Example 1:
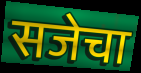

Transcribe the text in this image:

सजेचा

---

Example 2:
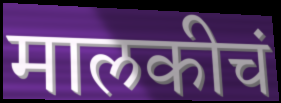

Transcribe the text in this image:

मालकीचं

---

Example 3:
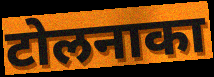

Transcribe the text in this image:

टोलनाका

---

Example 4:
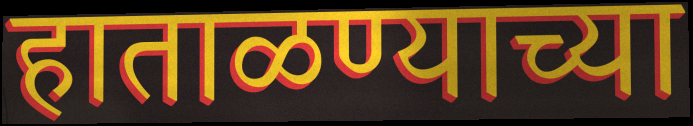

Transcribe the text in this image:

हाताळण्याच्या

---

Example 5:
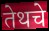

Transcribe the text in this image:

तेथचे